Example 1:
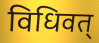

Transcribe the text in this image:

विधिवत्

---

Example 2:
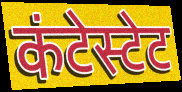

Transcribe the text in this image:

कंटेस्टेट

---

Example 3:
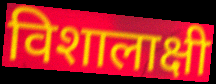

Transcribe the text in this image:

विशालाक्षी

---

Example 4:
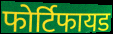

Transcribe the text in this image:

फोर्टिफायड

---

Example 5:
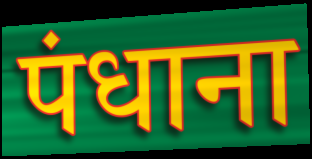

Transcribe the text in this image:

पंधाना